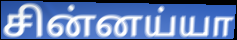
சின்னய்யா